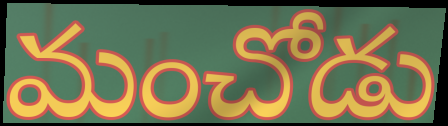
మంచోడు